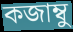
কজাম্বু